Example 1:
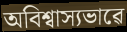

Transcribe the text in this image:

অবিশ্বাস্যভাৱে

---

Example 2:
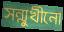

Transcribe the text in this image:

সন্মুখীনো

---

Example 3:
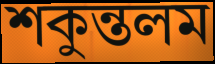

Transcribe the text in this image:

শকুন্তলম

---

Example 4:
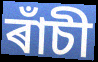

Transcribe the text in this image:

ৰাঁচী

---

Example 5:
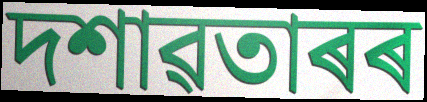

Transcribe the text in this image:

দশাৱতাৰৰ